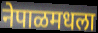
नेपाळमधला